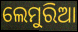
ଲେମୁରିଆ